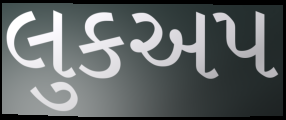
લુકઅપ